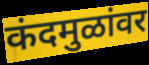
कंदमुळांवर